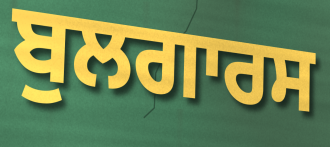
ਬੁਲਗਾਰਸ